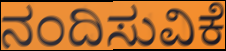
ನಂದಿಸುವಿಕೆ